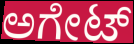
ಅಗೇಟ್